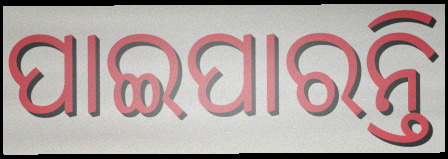
ପାଇପାରନ୍ତି